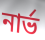
নার্ভ